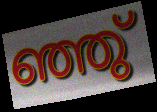
ഞ്ഞു്